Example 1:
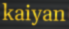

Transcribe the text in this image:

kaiyan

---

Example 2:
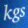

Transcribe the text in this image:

kgs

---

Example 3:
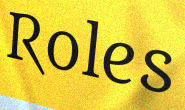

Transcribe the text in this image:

Roles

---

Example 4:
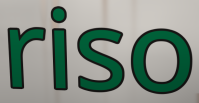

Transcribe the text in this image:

riso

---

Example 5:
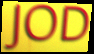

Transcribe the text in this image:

JOD